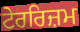
ਟੇਰਰਿਜ਼ਮ